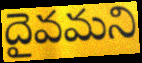
దైవమని